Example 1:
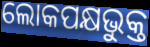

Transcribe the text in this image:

ଲୋକପକ୍ଷଭୁକ୍ତ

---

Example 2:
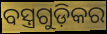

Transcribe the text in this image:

ବସ୍ତ୍ରଗୁଡ଼ିକର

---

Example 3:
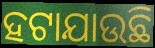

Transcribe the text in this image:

ହଟାଯାଉଛି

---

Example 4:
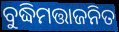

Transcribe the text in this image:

ବୁଦ୍ଧିମତ୍ତାଜନିତ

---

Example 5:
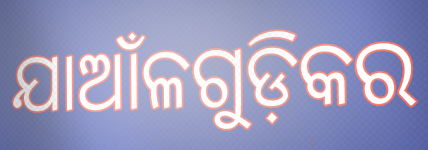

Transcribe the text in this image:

ଯାଆଁଳଗୁଡ଼ିକର